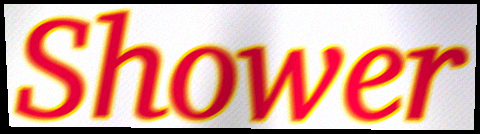
Shower